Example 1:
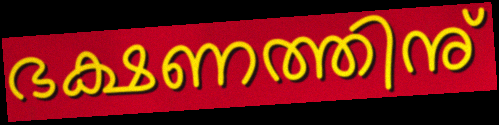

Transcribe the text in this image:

ഭക്ഷണത്തിനു്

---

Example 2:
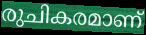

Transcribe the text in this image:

രുചികരമാണ്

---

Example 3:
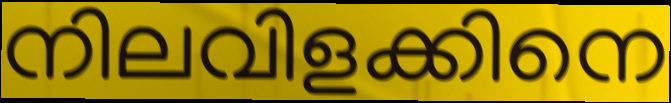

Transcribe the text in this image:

നിലവിളക്കിനെ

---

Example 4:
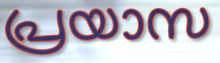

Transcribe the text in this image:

പ്രയാസ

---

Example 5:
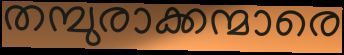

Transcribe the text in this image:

തമ്പുരാക്കന്മാരെ